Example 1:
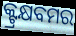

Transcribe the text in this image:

କ୍ଟ୍ରକ୍ଷବମର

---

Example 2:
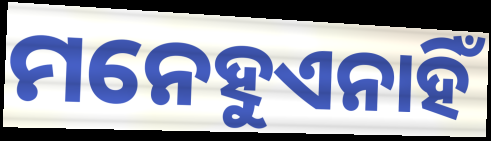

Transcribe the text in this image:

ମନେହୁଏନାହିଁ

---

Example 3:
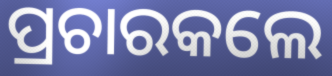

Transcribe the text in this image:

ପ୍ରଚାରକଲେ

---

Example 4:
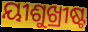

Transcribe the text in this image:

ୟୀଶୁଖ୍ରୀଷ୍ଟ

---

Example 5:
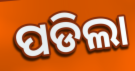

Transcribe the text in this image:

ପଡିଲା